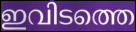
ഇവിടത്തെ